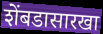
शेंबडासारखा